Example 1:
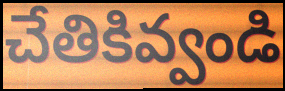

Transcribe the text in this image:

చేతికివ్వండి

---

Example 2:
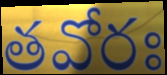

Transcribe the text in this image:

తవోరః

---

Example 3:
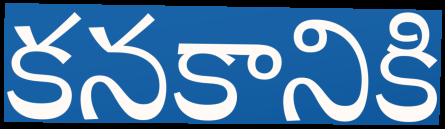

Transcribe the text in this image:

కనకానికి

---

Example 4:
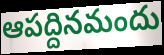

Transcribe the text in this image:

ఆపద్దినమందు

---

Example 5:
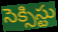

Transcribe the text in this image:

సెక్సిస్టు